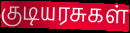
குடியரசுகள்